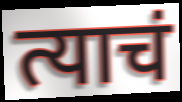
त्याचं